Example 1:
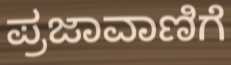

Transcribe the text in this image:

ಪ್ರಜಾವಾಣಿಗೆ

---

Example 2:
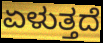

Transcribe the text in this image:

ಏಳುತ್ತದೆ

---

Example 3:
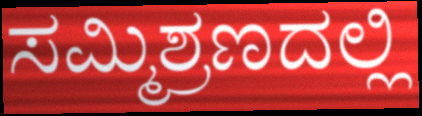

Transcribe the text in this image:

ಸಮ್ಮಿಶ್ರಣದಲ್ಲಿ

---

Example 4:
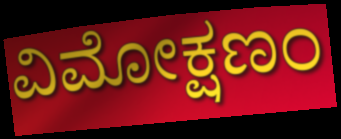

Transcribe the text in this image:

ವಿಮೋಕ್ಷಣಂ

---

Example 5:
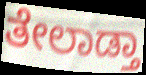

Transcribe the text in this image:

ತೇಲಾಡ್ತಾ